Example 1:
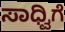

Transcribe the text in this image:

ಸಾಧ್ವಿಗೆ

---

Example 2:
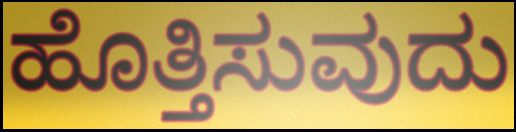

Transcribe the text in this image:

ಹೊತ್ತಿಸುವುದು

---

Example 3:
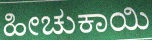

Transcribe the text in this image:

ಹೀಚುಕಾಯಿ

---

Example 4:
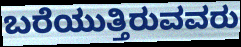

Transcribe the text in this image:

ಬರೆಯುತ್ತಿರುವವರು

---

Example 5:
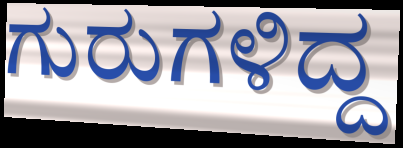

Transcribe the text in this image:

ಗುರುಗಳಿದ್ದ